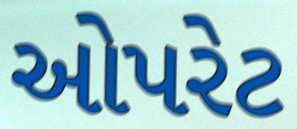
ઓપરેટ